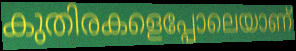
കുതിരകളെപ്പോലെയാണ്